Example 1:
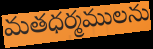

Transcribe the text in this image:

మతధర్మములను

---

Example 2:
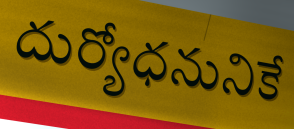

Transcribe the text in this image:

దుర్యోధనునికే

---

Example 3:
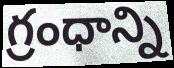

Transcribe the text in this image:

గ్రంధాన్ని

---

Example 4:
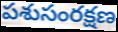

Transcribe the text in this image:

పశుసంరక్షణ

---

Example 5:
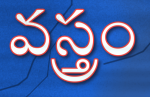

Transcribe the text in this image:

వస్త్రం